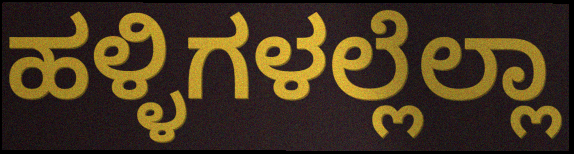
ಹಳ್ಳಿಗಳಲ್ಲೆಲ್ಲಾ